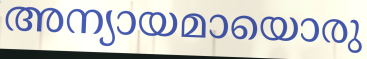
അന്യായമായൊരു